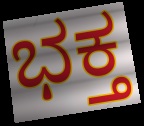
ಭಕ್ತ